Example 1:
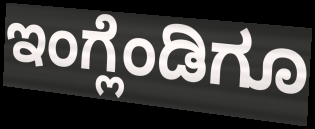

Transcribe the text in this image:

ಇಂಗ್ಲೆಂಡಿಗೂ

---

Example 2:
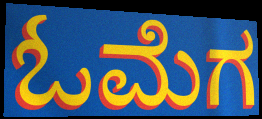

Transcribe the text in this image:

ಓಮೆಗ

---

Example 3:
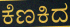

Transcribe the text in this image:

ಕೆಣಕಿದ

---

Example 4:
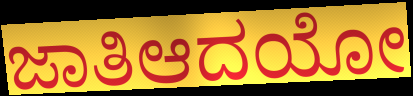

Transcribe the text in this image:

ಜಾತಿಆದಯೋ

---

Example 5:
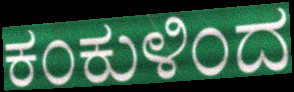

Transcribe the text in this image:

ಕಂಕುಳಿಂದ